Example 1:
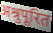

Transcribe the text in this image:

अश्रुपूरित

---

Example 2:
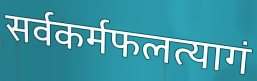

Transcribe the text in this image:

सर्वकर्मफलत्यागं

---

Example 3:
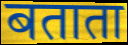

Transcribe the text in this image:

बताता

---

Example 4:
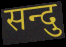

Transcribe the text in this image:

सन्दु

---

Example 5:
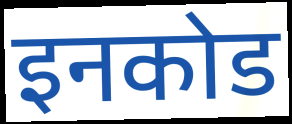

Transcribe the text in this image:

इनकोड